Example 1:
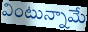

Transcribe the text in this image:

వింటున్నామే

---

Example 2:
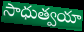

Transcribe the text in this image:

సాధుత్వయా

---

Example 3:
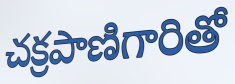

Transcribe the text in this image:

చక్రపాణిగారితో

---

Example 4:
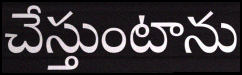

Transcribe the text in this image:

చేస్తుంటాను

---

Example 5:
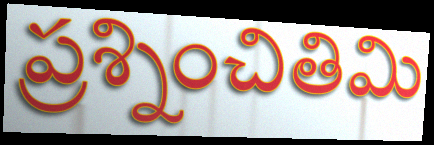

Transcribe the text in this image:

ప్రశ్నించితిమి